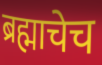
ब्रह्माचेच